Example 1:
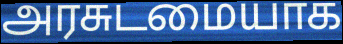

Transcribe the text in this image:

அரசுடமையாக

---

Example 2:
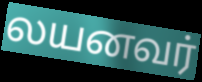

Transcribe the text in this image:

லயனவர்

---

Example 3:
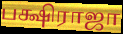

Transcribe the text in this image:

பக்ஷிராஜா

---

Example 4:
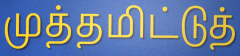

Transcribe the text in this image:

முத்தமிட்டுத்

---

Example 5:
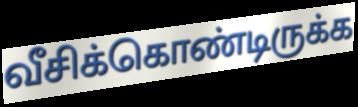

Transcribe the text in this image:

வீசிக்கொண்டிருக்க